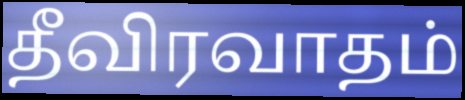
தீவிரவாதம்